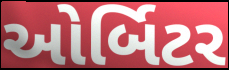
ઓર્બિટર